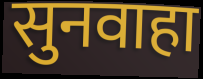
सुनवाहा